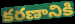
కరణానికి